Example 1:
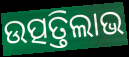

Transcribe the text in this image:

ଉତ୍ପତ୍ତିଲାଭ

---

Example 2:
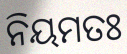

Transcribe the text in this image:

ନିୟମତଃ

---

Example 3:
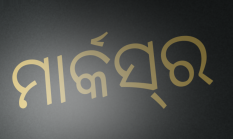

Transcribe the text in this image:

ମାର୍କସ୍‍ର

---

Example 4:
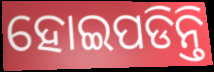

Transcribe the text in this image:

ହୋଇପଡିନ୍ତି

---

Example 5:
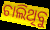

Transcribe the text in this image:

ଚାଲିଥିବୁ